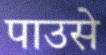
पाउसे